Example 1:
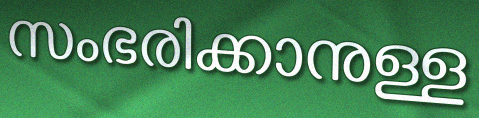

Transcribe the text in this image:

സംഭരിക്കാനുള്ള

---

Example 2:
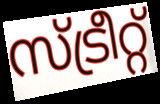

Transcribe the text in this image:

സ്ട്രീറ്റ്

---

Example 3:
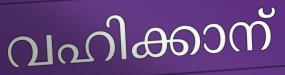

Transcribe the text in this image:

വഹിക്കാന്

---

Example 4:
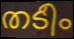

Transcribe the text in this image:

തടീം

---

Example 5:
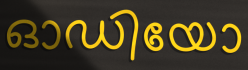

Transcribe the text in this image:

ഓഡിയോ